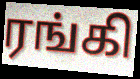
ரங்கி